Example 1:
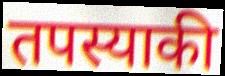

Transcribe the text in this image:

तपस्याकी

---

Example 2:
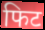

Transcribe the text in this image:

फिट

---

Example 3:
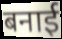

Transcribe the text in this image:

बनाई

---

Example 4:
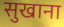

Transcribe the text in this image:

सुखाना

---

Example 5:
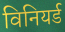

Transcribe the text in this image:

विनियर्ड